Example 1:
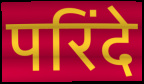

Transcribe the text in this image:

परिंदे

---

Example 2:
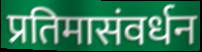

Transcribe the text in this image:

प्रतिमासंवर्धन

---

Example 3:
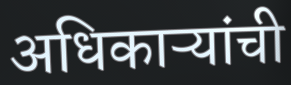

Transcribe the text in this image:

अधिकाऱ्यांची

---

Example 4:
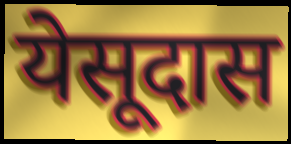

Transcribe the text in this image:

येसूदास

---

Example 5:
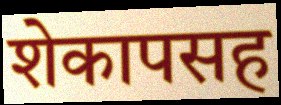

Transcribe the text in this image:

शेकापसह